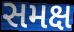
સમક્ષ